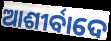
ଆଶୀର୍ବାଦେ